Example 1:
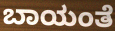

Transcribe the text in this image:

ಬಾಯಂತೆ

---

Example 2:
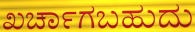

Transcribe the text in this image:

ಖರ್ಚಾಗಬಹುದು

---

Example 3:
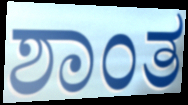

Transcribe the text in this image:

ಶಾಂತ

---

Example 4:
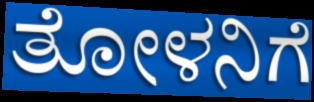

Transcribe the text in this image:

ತೋಳನಿಗೆ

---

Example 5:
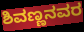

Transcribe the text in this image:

ಶಿವಣ್ಣನವರ